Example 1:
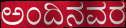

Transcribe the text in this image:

ಅಂದಿನವರ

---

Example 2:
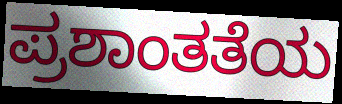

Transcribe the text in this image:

ಪ್ರಶಾಂತತೆಯ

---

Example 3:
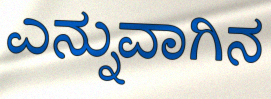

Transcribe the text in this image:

ಎನ್ನುವಾಗಿನ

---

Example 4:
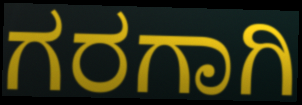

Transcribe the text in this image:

ಗರಗಾಗಿ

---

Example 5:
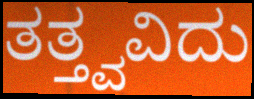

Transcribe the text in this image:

ತತ್ತ್ವವಿದು